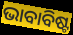
ଭାବାବିଷ୍ଟ